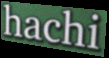
hachi